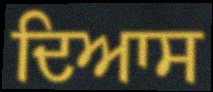
ਦਿਆਸ